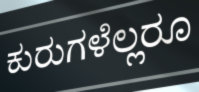
ಕುರುಗಳೆಲ್ಲರೂ